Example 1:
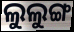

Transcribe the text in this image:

ଲୁଲୁଙ୍ଗ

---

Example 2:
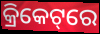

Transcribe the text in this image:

କ୍ରିକେଟ୍‌ରେ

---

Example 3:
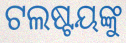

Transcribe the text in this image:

ଟଲଷ୍ଟୟଙ୍କୁ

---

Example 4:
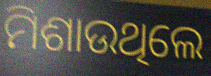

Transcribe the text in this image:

ମିଶାଉଥିଲେ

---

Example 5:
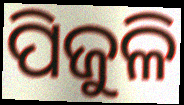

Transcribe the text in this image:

ପିଜୁଳି